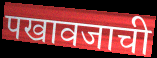
पखावजाची